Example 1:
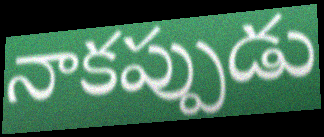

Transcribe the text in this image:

నాకప్పుడు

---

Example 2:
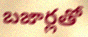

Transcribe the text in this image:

బజార్లతో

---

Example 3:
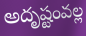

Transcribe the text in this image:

అదృష్టంవల్ల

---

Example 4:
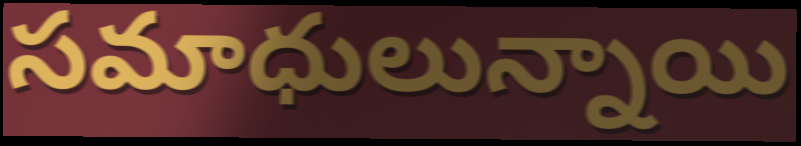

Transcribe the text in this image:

సమాధులున్నాయి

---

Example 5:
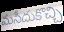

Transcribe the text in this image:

మసీదుకొచ్చి